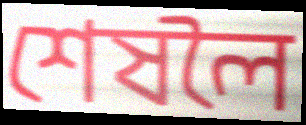
শেষলৈ